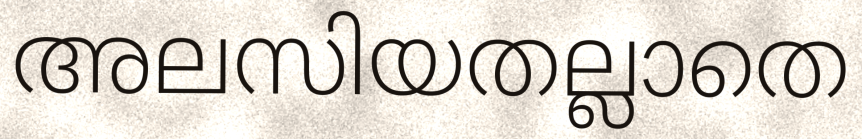
അലസിയതല്ലാതെ